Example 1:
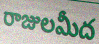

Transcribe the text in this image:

రాజులమీద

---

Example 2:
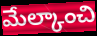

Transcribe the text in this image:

మేల్కాంచి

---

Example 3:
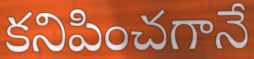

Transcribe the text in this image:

కనిపించగానే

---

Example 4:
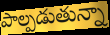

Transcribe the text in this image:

పాల్పడుతున్నా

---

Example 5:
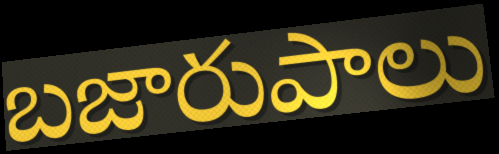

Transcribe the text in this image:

బజారుపాలు